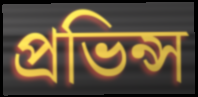
প্রভিন্স